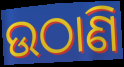
ଉଠାଣି